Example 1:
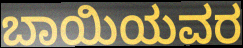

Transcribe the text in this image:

ಬಾಯಿಯವರ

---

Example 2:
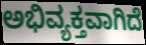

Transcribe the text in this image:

ಅಭಿವ್ಯಕ್ತವಾಗಿದೆ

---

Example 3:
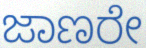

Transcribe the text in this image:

ಜಾಣರೇ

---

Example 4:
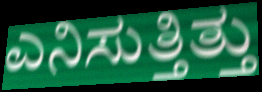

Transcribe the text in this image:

ಎನಿಸುತ್ತಿತ್ತು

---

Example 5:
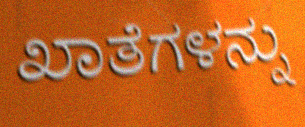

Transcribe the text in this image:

ಖಾತೆಗಳನ್ನು